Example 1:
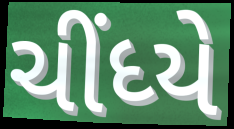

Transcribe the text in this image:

ચીંધ્યે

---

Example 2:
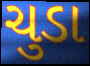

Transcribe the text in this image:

ચુડા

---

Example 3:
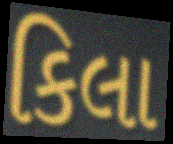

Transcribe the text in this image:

કિલા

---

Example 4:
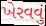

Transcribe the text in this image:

ખેરવવું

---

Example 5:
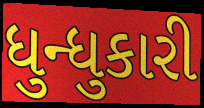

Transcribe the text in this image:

ધુન્ધુકારી